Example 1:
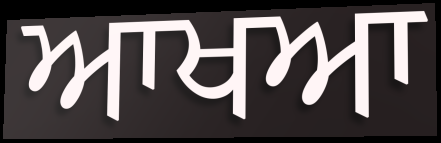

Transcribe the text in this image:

ਆਖਆ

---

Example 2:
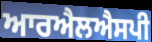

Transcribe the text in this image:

ਆਰਐਲਐਸਪੀ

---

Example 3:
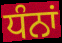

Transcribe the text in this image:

ਧੰਨਾਂ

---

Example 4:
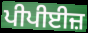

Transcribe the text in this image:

ਪੀਪੀਈਜ਼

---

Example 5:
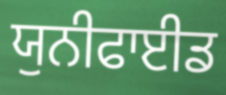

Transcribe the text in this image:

ਯੁਨੀਫਾਈਡ